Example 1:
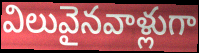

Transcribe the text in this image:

విలువైనవాళ్లుగా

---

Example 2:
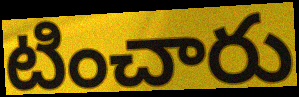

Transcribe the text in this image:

టించారు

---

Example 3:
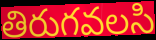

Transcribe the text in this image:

తిరుగవలసి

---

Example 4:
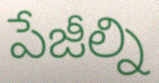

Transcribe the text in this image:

పేజీల్ని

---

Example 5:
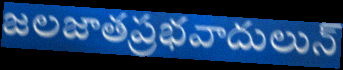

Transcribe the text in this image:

జలజాతప్రభవాదులున్